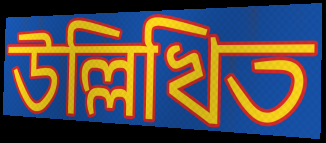
উল্লিখিত